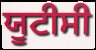
ਯੂਟੀਸੀ